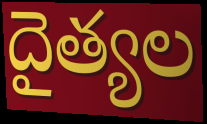
దైత్యల